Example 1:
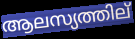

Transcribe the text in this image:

ആലസ്യത്തില്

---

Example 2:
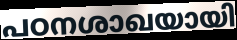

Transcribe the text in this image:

പഠനശാഖയായി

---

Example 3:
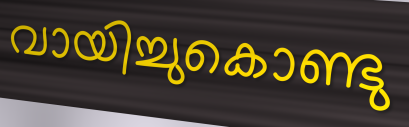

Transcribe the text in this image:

വായിച്ചുകൊണ്ടു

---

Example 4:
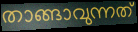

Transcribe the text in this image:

താങ്ങാവുന്നത്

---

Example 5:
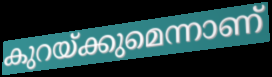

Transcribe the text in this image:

കുറയ്ക്കുമെന്നാണ്